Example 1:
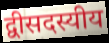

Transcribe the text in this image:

द्वीसदस्यीय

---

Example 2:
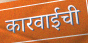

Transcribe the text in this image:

कारवाईची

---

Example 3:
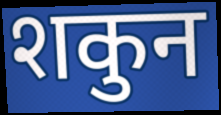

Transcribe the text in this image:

शकुन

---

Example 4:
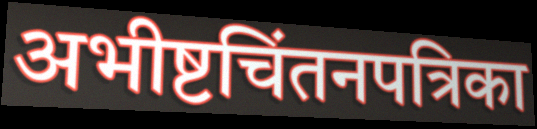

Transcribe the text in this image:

अभीष्टचिंतनपत्रिका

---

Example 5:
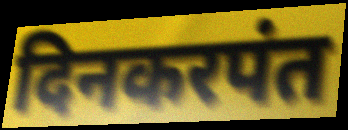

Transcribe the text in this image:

दिनकरपंत